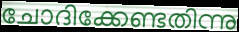
ചോദിക്കേണ്ടതിന്നു